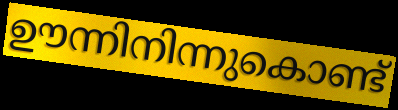
ഊന്നിനിന്നുകൊണ്ട്